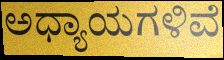
ಅಧ್ಯಾಯಗಳಿವೆ